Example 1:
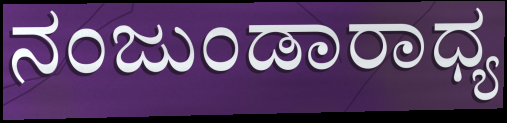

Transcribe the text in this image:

ನಂಜುಂಡಾರಾಧ್ಯ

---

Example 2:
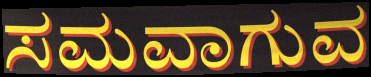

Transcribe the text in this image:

ಸಮವಾಗುವ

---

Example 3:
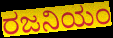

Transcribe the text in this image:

ರಜನಿಯಂ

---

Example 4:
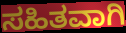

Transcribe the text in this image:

ಸಹಿತವಾಗಿ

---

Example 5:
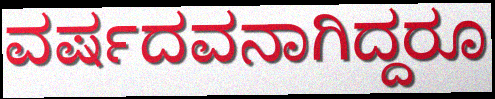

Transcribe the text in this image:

ವರ್ಷದವನಾಗಿದ್ದರೂ